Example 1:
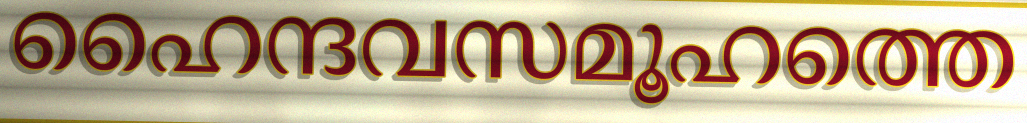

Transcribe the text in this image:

ഹൈന്ദവസമൂഹത്തെ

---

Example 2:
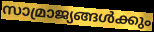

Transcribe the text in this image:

സാമ്രാജ്യങ്ങൾക്കും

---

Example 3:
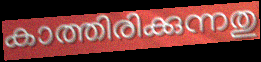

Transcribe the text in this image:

കാത്തിരിക്കുന്നതു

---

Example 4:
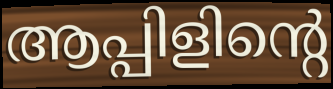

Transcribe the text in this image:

ആപ്പിളിന്റെ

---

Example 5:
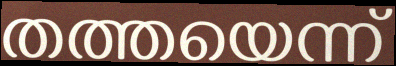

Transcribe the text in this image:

തത്തയെന്ന്